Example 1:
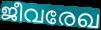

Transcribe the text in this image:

ജീവരേഖ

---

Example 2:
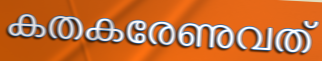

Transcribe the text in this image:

കതകരേണുവത്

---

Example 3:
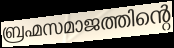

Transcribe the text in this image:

ബ്രഹ്മസമാജത്തിന്റെ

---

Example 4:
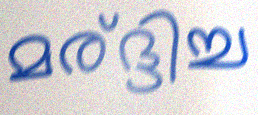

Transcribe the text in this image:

മര്ദ്ദിച്ച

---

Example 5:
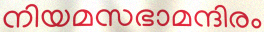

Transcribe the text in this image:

നിയമസഭാമന്ദിരം